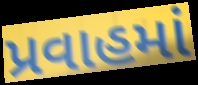
પ્રવાહમાં